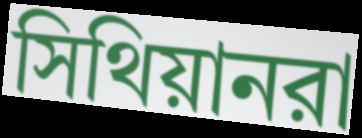
সিথিয়ানরা